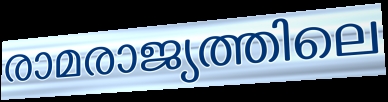
രാമരാജ്യത്തിലെ